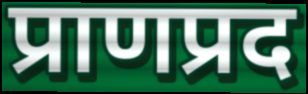
प्राणप्रद